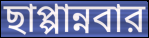
ছাপ্পান্নবার